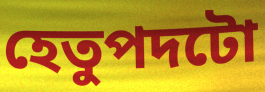
হেতুপদটো